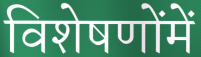
विशेषणोंमें